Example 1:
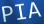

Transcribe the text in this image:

PIA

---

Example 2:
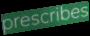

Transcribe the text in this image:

prescribes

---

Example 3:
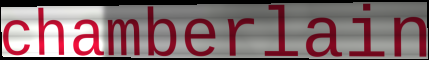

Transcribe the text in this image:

chamberlain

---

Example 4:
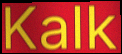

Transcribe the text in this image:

Kalk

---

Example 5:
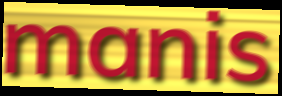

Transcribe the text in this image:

manis